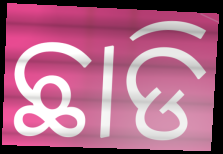
ଛାଡି